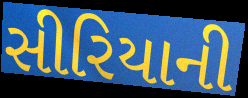
સીરિયાની